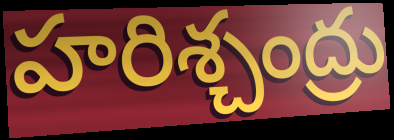
హరిశ్చంద్రు